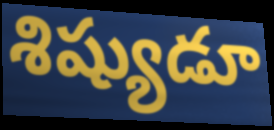
శిష్యుడూ